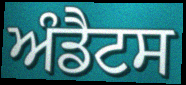
ਅੰਡੈਟਸ